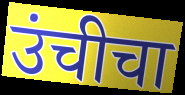
उंचीचा